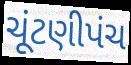
ચૂંટણીપંચ